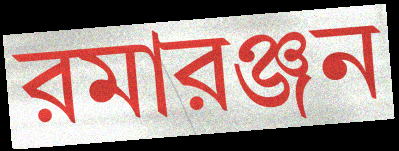
রমারঞ্জন